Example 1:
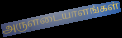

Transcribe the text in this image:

அருளடையாளங்கள்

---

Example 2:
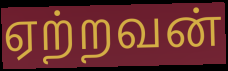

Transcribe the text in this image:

ஏற்றவன்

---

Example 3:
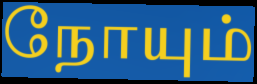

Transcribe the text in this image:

நோயும்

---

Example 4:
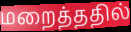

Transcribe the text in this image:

மறைத்ததில்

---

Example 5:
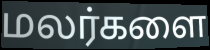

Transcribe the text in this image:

மலர்களை